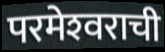
परमेश्‍वराची